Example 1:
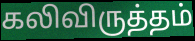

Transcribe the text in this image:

கலிவிருத்தம்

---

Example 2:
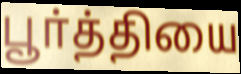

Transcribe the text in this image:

பூர்த்தியை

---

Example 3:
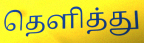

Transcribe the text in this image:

தெளித்து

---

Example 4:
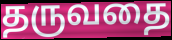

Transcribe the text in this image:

தருவதை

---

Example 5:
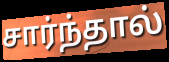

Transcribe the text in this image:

சார்ந்தால்